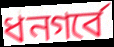
ধনগর্বে